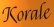
Korale